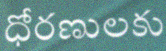
ధోరణులకు